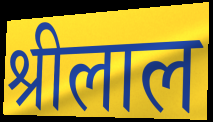
श्रीलाल